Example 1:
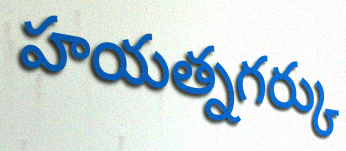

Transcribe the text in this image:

హయత్నగర్కు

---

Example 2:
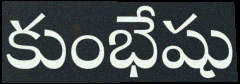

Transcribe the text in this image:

కుంభేషు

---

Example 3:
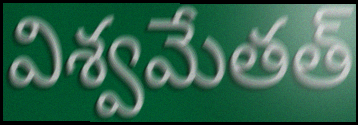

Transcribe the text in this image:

విశ్వమేతత్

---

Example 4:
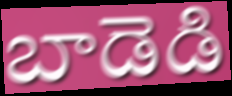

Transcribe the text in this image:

బాడెడి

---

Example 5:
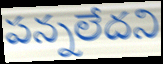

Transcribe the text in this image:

పన్నలేదని